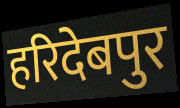
हरिदेबपुर